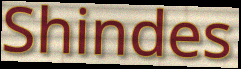
Shindes